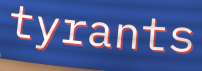
tyrants